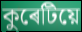
কুৰেটিয়ে